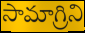
సామాగ్రిని